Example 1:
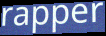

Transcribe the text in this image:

rapper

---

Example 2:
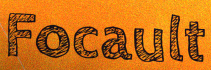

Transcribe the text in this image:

Focault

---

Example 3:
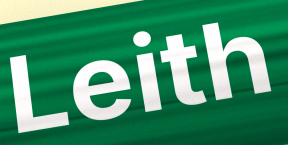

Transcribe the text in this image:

Leith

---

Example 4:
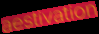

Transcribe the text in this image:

aestivation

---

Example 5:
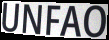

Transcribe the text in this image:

UNFAO